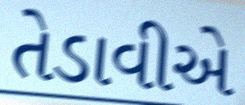
તેડાવીએ